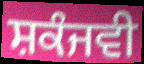
ਸ਼ਕੰਜਵੀ